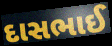
દાસભાઈ